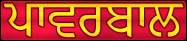
ਪਾਵਰਬਾਲ